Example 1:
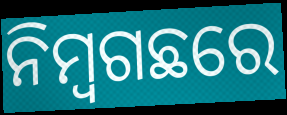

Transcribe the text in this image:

ନିମ୍ବଗଛରେ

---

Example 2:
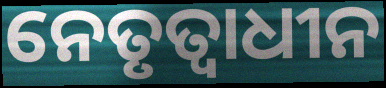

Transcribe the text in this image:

ନେତୃତ୍ୱାଧୀନ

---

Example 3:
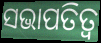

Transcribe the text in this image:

ସଭାପତିତ୍ବ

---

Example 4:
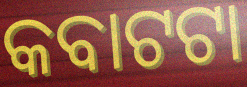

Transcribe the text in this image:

କବାଟଟା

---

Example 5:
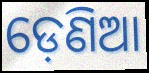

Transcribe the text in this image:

ଡ଼େଣିଆ